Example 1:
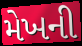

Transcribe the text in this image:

મેખની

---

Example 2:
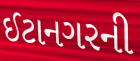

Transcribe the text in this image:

ઈટાનગરની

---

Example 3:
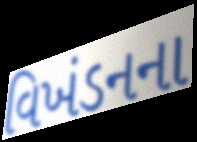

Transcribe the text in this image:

વિખંડનના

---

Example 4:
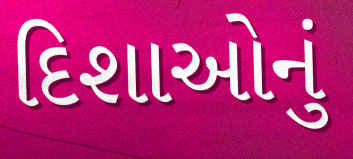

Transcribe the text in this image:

દિશાઓનું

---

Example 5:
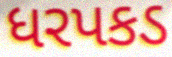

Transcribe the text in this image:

ધરપકડ